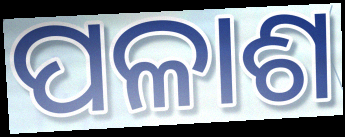
ପଳାଶ